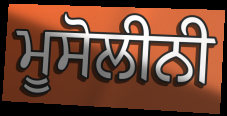
ਮੂਸੋਲੀਨੀ